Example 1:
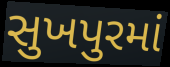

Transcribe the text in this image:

સુખપુરમાં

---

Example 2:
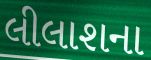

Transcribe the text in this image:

લીલાશના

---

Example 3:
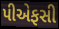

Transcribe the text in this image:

પીએફસી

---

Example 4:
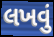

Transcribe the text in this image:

લખવું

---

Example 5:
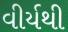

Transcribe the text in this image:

વીર્યથી